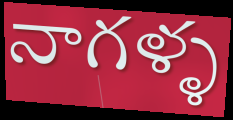
నాగళ్ళ